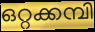
ഒറ്റക്കമ്പി